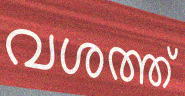
വശത്ത്